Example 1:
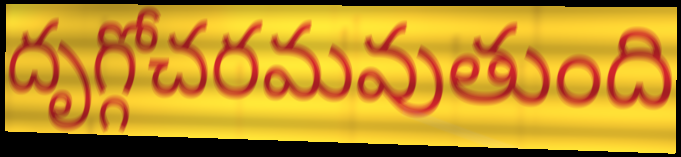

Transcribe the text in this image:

దృగ్గోచరమవుతుంది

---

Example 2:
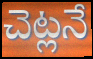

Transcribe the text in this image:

చెట్లనే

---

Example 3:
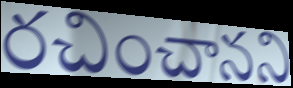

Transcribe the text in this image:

రచించానని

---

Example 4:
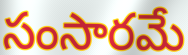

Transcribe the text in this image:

సంసారమే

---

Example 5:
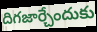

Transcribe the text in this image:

దిగజార్చేందుకు